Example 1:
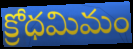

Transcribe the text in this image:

క్రోధమిమం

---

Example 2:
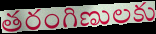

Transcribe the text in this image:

తరంగిణులకు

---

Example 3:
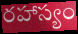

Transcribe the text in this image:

రహాస్యం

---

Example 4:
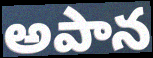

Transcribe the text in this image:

అపాన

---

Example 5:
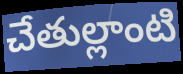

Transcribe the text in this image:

చేతుల్లాంటి